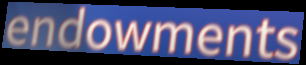
endowments